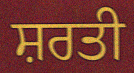
ਸ਼ਰਤੀ